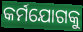
କର୍ମଯୋଗକୁ